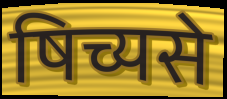
षिच्यसे